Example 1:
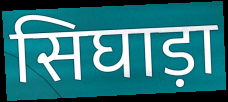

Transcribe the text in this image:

सिघाड़ा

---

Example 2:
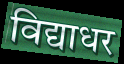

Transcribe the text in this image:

विद्याधर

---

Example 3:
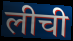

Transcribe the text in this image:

लीची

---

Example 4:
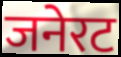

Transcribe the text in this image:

जनेरट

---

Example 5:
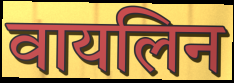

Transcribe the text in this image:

वायलिन